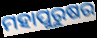
ମହାପୁରୁଷର